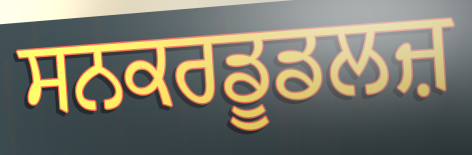
ਸਨਕਰਡੂਡਲਜ਼